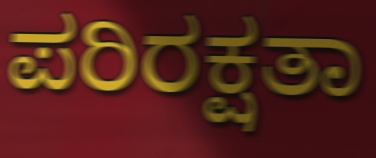
ಪರಿರಕ್ಷತಾ